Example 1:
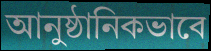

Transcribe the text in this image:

আনুষ্ঠানিকভাবে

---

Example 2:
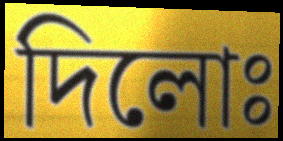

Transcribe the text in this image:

দিলোঃ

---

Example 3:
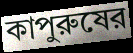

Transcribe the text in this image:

কাপুরুষের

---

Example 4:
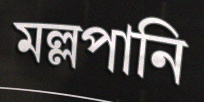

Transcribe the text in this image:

মল্লপানি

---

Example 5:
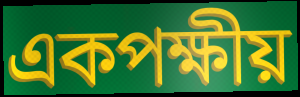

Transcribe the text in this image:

একপক্ষীয়